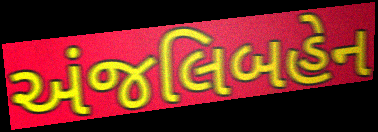
અંજલિબહેન